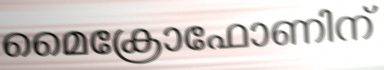
മൈക്രോഫോണിന്